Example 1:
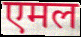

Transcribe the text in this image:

एमल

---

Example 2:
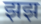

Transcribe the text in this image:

झझ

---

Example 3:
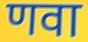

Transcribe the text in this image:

णवा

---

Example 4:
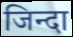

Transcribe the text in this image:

जिन्‍दा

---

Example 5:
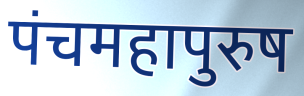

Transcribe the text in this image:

पंचमहापुरुष